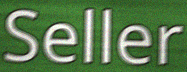
Seller